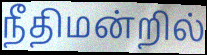
நீதிமன்றில்